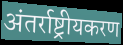
अंतर्राष्ट्रीयकरण